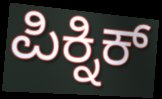
ಪಿಕ್ನಿಕ್